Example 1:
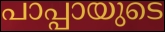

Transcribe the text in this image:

പാപ്പായുടെ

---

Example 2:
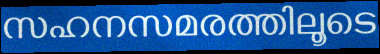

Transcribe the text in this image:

സഹനസമരത്തിലൂടെ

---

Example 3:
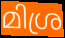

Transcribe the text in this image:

മിശ്ര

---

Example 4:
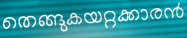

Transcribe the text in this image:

തെങ്ങുകയറ്റക്കാരൻ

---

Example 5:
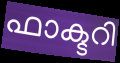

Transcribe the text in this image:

ഫാക്ടറി